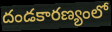
దండకారణ్యంలో